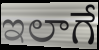
ఇలాగే